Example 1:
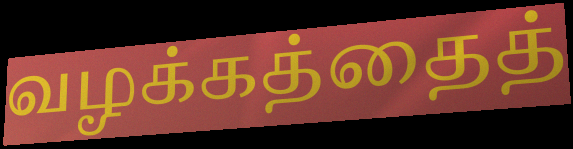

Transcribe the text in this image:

வழக்கத்தைத்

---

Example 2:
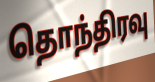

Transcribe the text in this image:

தொந்திரவு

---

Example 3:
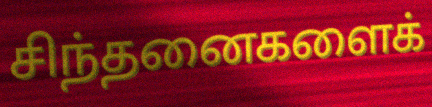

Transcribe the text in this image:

சிந்தனைகளைக்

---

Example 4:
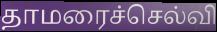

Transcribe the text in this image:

தாமரைச்செல்வி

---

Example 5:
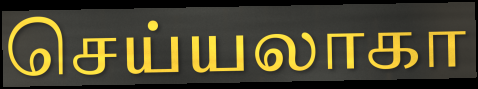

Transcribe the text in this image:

செய்யலாகா